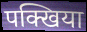
पक्खिया